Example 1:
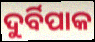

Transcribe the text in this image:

ଦୁର୍ବିପାକ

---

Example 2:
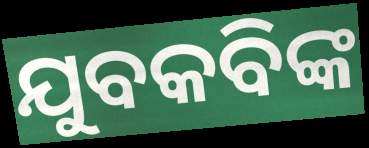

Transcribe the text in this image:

ଯୁବକବିଙ୍କ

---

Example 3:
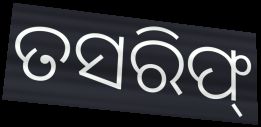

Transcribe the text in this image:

ତସରିଫ୍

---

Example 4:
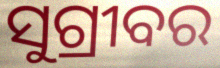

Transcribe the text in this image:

ସୁଗ୍ରୀବର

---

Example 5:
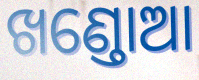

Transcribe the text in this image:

ଖଣ୍ଡୋଆ